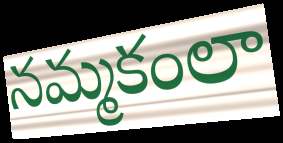
నమ్మకంలా